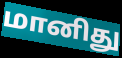
மானிது